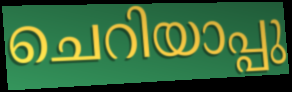
ചെറിയാപ്പു